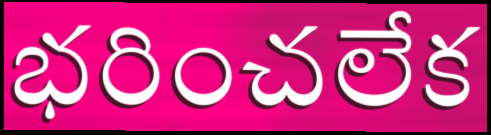
భరించలేక